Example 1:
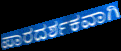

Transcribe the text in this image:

ಪಾರದರ್ಶಕವಾಗಿ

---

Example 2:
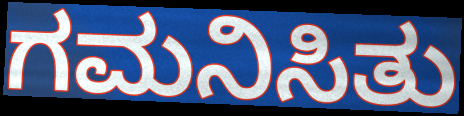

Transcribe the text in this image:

ಗಮನಿಸಿತು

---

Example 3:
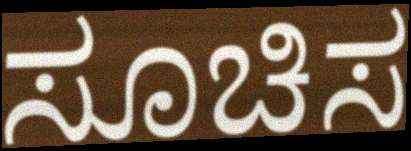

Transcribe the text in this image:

ಸೂಚಿಸ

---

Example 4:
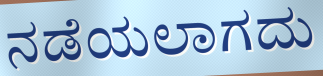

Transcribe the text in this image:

ನಡೆಯಲಾಗದು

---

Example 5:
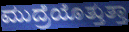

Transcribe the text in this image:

ಮುದ್ರೆಯೊತ್ತುತ್ತಾ